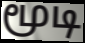
மூடி